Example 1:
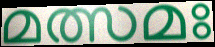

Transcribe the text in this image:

മത്സമഃ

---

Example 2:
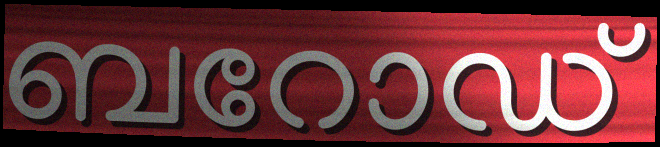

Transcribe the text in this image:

ബറോഡ്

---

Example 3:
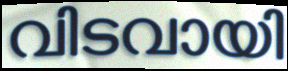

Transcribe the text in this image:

വിടവായി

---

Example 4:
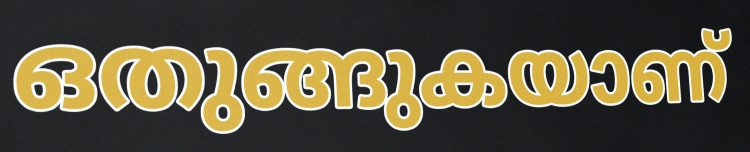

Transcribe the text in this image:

ഒതുങ്ങുകയാണ്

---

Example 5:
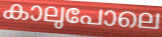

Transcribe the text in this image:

കാലുപോലെ